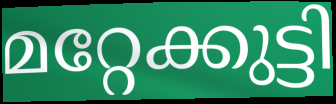
മറ്റേക്കുട്ടി